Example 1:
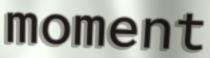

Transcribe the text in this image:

moment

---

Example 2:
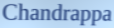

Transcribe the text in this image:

Chandrappa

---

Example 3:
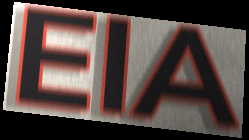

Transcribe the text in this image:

EIA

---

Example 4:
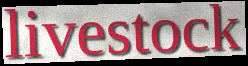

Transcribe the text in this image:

livestock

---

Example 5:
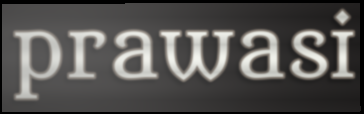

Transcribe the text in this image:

prawasi